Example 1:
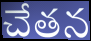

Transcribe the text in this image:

చేతన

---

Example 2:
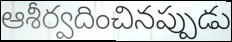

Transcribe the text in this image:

ఆశీర్వదించినప్పుడు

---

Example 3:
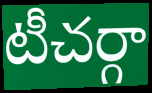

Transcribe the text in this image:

టీచర్గా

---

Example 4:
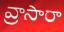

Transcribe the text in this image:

వ్రాసారా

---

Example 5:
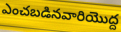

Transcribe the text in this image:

ఎంచబడినవారియొద్ద